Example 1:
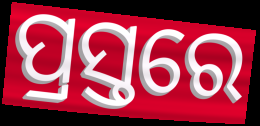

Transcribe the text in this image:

ପ୍ରସ୍ତରେ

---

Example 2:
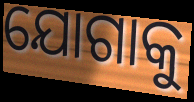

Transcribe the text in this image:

ଯୋଗାକୁ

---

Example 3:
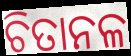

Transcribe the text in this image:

ଚିତାନଳ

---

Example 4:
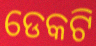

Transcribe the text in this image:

ଡେକଟି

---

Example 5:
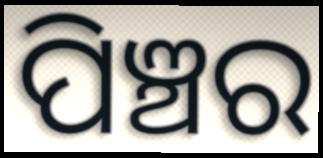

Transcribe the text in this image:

ପିଞ୍ଚର